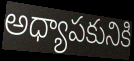
అధ్యాపకునికి